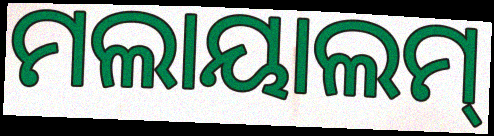
ମଲାୟାଲମ୍